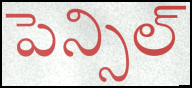
పెన్సిల్